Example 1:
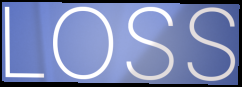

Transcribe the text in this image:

LOSS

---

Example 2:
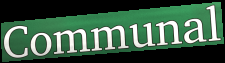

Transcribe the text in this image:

Communal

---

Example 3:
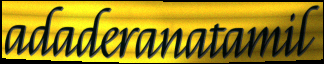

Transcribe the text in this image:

adaderanatamil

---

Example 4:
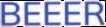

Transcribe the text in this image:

BEEER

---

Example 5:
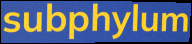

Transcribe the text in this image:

subphylum